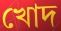
খোদ